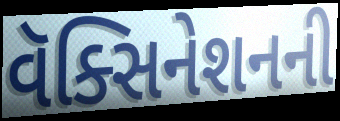
વૅક્સિનેશનની